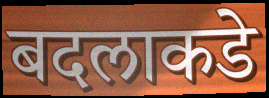
बदलाकडे